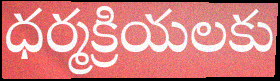
ధర్మక్రియలకు